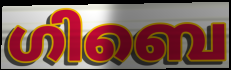
ഗിബെ